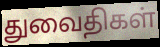
துவைதிகள்